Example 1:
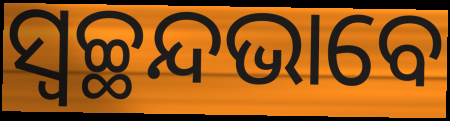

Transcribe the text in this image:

ସ୍ୱଚ୍ଛନ୍ଦଭାବେ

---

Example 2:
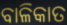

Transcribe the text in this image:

ବାଳିକାତ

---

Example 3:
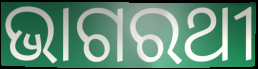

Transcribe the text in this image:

ଭାଗରଥୀ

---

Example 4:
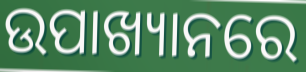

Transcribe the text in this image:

ଉପାଖ୍ୟାନରେ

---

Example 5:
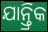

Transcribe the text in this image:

ଯାନ୍ତ୍ରିକ